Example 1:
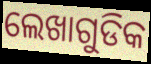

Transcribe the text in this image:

ଲେଖାଗୁଡିକ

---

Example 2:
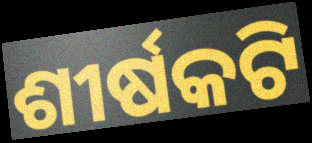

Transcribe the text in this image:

ଶୀର୍ଷକଟି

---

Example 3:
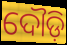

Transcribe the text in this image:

ଦୌଡ଼ି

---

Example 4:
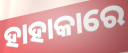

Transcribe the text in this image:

ହାହାକାରେ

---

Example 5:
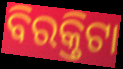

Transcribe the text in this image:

ବିରକ୍ତିଟା